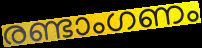
രണ്ടാംഗണം